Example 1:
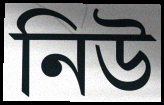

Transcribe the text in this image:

নিউ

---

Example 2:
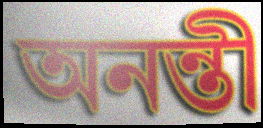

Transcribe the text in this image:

অনন্তী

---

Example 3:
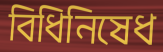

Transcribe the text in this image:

বিধিনিষেধ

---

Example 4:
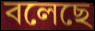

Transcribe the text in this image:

বলেছে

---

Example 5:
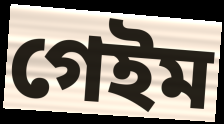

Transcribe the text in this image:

গেইম